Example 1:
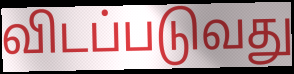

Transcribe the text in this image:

விடப்படுவது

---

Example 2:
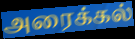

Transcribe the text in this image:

அரைக்கல்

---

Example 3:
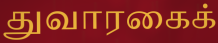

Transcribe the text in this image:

துவாரகைக்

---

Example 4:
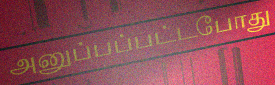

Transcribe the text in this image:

அனுப்பப்பட்டபோது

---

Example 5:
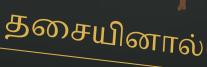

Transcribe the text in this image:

தசையினால்